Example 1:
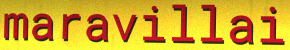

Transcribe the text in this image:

maravillai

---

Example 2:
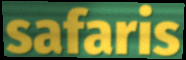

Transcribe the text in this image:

safaris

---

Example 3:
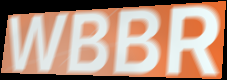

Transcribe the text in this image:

WBBR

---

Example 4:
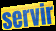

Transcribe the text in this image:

servir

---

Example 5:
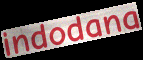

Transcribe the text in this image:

indodana